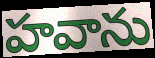
హవాను